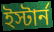
ইস্টার্ন